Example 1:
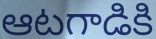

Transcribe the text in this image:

ఆటగాడికి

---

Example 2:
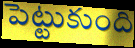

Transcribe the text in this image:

పెట్టుకుంది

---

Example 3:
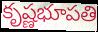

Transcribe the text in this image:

కృష్ణభూపతి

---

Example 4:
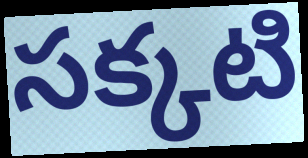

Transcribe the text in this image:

సక్కటి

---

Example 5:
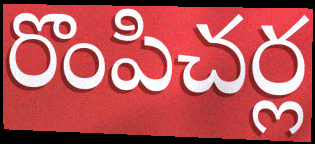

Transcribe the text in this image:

రొంపిచర్ల